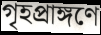
গৃহপ্রাঙ্গণে